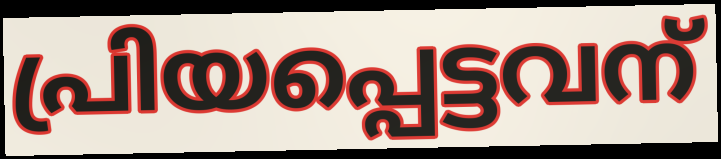
പ്രിയപ്പെട്ടവന്